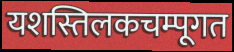
यशस्तिलकचम्पूगत